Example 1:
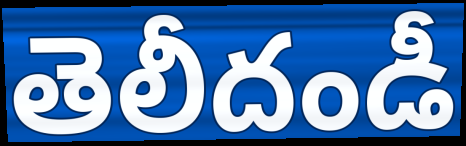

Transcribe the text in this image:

తెలీదండీ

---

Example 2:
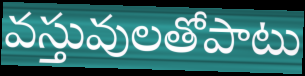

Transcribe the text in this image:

వస్తువులతోపాటు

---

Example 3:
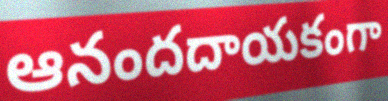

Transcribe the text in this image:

ఆనందదాయకంగా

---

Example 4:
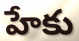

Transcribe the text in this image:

హేకు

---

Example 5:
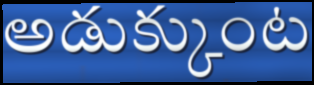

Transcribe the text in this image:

అడుక్కుంట